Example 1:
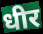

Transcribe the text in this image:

धीर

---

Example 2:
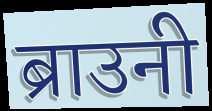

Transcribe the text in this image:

ब्राउनी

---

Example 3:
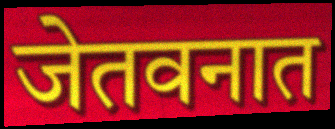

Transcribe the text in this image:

जेतवनात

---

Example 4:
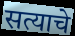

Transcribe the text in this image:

सत्याचे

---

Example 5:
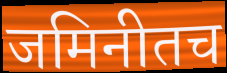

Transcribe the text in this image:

जमिनीतच